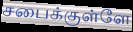
சபைக்குள்ளே